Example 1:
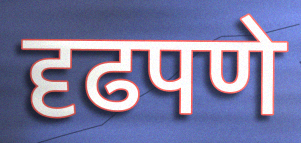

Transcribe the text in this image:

दृढपणे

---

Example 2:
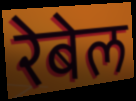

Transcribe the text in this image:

रेबेल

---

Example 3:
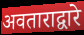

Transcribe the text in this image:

अवताराद्वारे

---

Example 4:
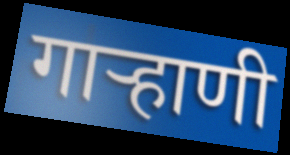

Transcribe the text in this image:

गार्‍हाणी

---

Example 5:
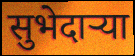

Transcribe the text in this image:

सुभेदाऱ्या